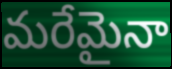
మరేమైనా